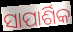
ସାପାର୍ଶିକ